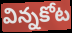
విన్నకోట